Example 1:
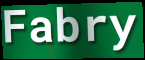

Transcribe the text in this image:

Fabry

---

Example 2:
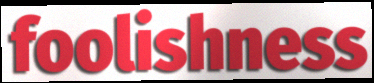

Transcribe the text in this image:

foolishness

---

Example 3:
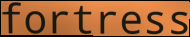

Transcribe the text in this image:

fortress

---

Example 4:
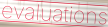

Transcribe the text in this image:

evaluations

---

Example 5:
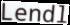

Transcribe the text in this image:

Lendl